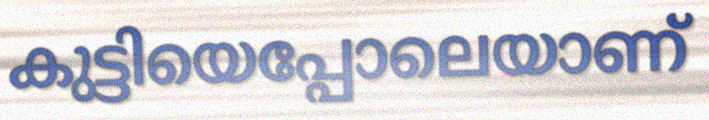
കുട്ടിയെപ്പോലെയാണ്